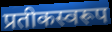
प्रतीकस्वरूप